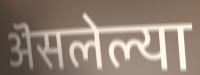
ऄसलेल्या